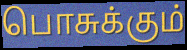
பொசுக்கும்